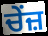
ਚੇਂਜ਼